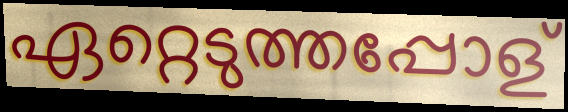
ഏറ്റെടുത്തപ്പോള്